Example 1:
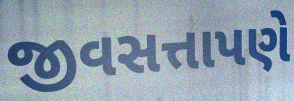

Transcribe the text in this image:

જીવસત્તાપણે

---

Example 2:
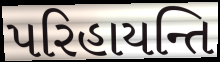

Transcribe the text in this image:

પરિહાયન્તિ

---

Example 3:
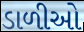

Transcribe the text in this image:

ડાળીઓ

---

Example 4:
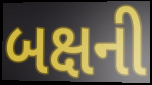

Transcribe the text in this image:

બક્ષની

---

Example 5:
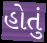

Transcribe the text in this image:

હોતું